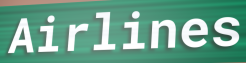
Airlines